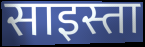
साइस्ता